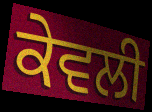
ਕੇਵਲੀ